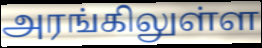
அரங்கிலுள்ள